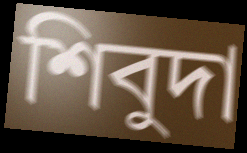
শিবুদা